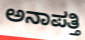
ಅನಾಪತ್ತಿ